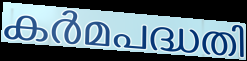
കർമപദ്ധതി